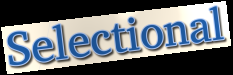
Selectional